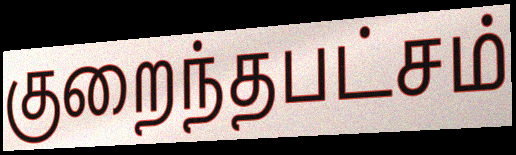
குறைந்தபட்சம்